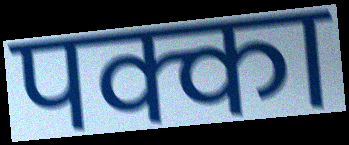
पक्का